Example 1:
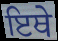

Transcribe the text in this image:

ਇਥੇ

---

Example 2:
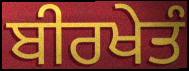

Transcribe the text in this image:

ਬੀਰਖੇਤੰ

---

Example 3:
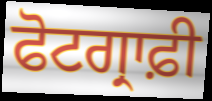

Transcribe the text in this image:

ਫੋਟਗ੍ਰਾਫ਼ੀ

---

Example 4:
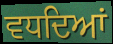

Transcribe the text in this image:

ਵਧਦਿਆਂ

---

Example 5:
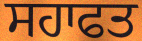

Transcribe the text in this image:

ਸਹਾਫਤ